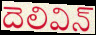
దెలివిన్